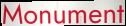
Monument